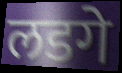
लडगे